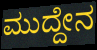
ಮುದ್ದೇನ